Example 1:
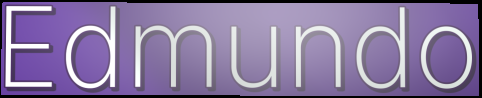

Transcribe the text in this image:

Edmundo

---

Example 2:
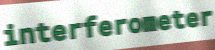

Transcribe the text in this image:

interferometer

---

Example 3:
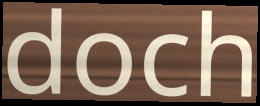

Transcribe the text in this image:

doch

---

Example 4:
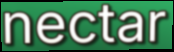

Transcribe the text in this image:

nectar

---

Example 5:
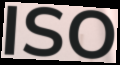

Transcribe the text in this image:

ISO